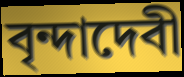
বৃন্দাদেবী